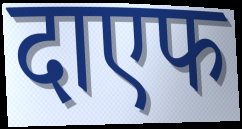
दाएफ